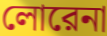
লোরেনা